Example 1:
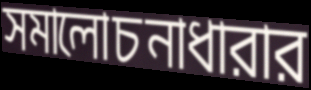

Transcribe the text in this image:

সমালোচনাধারার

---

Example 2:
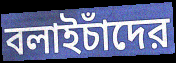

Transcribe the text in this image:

বলাইচাঁদের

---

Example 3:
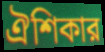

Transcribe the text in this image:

ঐশিকার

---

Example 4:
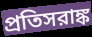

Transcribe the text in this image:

প্রতিসরাঙ্ক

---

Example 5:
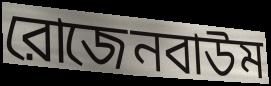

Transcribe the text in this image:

রোজেনবাউম